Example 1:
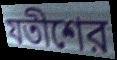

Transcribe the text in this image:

যতীশের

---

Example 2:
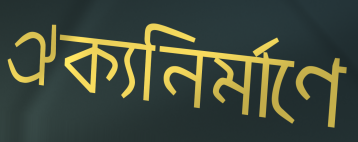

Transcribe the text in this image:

ঐক্যনির্মাণে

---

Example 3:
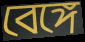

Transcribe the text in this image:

বেঙ্গে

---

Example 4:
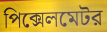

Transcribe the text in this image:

পিক্সেলমেটর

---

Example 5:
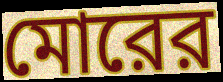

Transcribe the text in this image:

মোরের